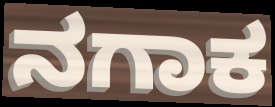
ನಗಾಕ